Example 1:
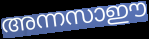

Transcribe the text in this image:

അന്നസാഈ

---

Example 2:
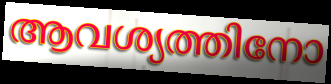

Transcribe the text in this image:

ആവശ്യത്തിനോ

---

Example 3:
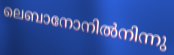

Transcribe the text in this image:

ലെബാനോനിൽനിന്നു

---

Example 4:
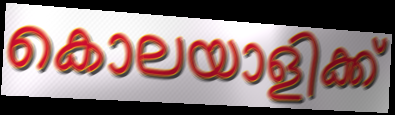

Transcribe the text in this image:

കൊലയാളിക്ക്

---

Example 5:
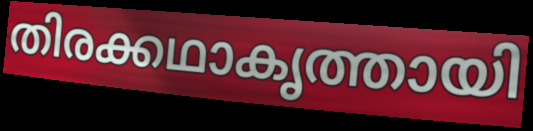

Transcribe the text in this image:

തിരക്കഥാകൃത്തായി